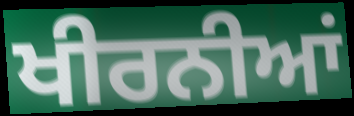
ਖੀਰਨੀਆਂ